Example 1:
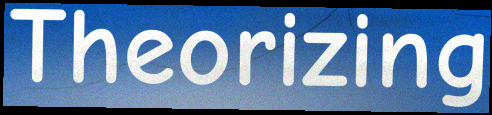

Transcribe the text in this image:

Theorizing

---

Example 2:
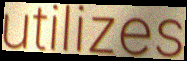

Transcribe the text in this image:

utilizes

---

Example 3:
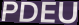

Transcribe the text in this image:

PDEU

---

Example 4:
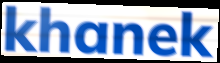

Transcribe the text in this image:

khanek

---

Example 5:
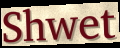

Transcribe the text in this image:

Shwet